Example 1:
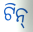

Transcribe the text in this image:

ଟିନ୍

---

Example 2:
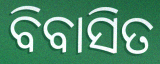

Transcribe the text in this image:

ବିବାସିତ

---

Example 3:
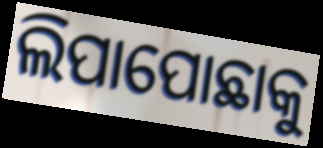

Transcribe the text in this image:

ଲିପାପୋଛାକୁ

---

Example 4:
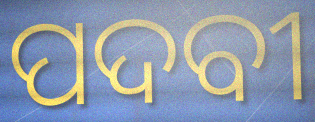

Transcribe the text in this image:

ପଦବୀ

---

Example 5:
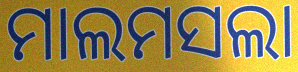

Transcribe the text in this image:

ମାଲମସଲା